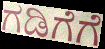
ಗಡಿಗೆಗೆ